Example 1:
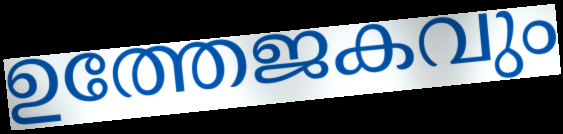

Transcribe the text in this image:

ഉത്തേജകവും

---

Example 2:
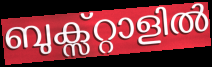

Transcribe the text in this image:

ബുക്സ്റ്റാളിൽ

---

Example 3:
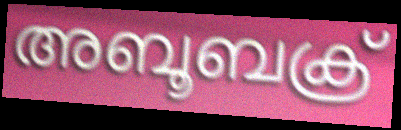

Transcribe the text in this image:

അബൂബക്ര്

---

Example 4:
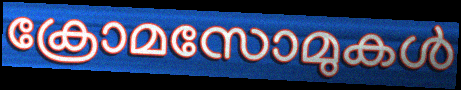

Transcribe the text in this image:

ക്രോമസോമുകൾ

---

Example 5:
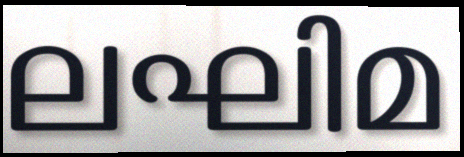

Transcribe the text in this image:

ലഘിമ